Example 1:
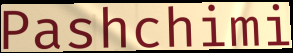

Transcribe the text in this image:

Pashchimi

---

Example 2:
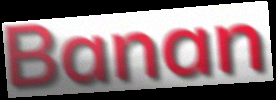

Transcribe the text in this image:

Banan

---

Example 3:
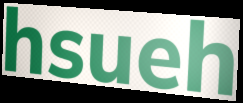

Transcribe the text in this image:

hsueh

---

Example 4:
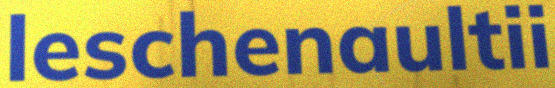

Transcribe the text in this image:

leschenaultii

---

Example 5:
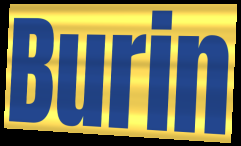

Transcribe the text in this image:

Burin